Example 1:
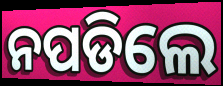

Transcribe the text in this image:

ନପଡିଲେ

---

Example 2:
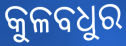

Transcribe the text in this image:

କୁଳବଧୁର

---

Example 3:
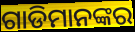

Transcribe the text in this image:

ଗାଡିମାନଙ୍କର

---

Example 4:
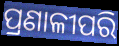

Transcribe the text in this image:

ପ୍ରଣାଳୀପରି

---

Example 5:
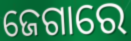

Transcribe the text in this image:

ଜେଗାରେ